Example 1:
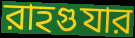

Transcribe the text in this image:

রাহগুযার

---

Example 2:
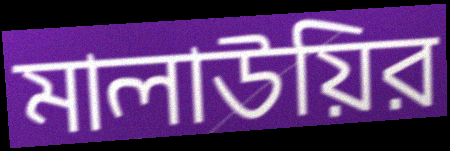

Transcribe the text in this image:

মালাউয়ির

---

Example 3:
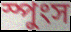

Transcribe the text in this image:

স্পুংস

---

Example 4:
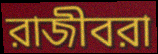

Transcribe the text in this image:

রাজীবরা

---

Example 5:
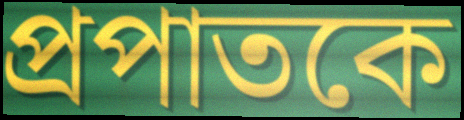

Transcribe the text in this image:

প্রপাতকে